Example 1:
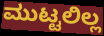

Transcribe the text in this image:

ಮುಟ್ಟಲಿಲ್ಲ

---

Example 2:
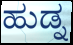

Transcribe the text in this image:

ಹುಡ್ನ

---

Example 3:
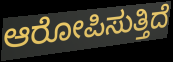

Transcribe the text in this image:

ಆರೋಪಿಸುತ್ತಿದೆ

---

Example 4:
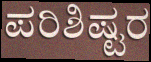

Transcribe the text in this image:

ಪರಿಶಿಷ್ಟರ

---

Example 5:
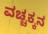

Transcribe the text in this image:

ವಚ್ಚಕ್ಕನ